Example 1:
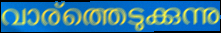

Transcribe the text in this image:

വാര്ത്തെടുക്കുന്നു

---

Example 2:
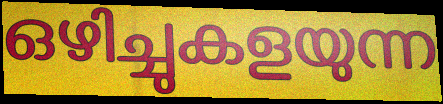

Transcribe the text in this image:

ഒഴിച്ചുകളയുന്ന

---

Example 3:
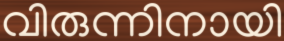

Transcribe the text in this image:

വിരുന്നിനായി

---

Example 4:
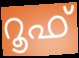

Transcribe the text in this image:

റൂഫ്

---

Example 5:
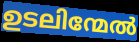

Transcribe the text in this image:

ഉടലിന്മേൽ